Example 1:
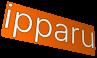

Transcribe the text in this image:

ipparu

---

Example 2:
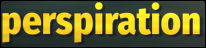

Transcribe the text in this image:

perspiration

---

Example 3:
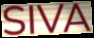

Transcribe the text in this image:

SIVA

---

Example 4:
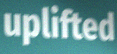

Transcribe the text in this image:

uplifted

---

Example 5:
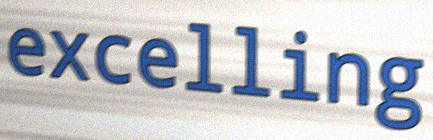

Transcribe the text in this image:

excelling